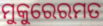
ମୁକୁରେରମତ